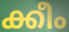
ക്കീം